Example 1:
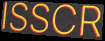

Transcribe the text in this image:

ISSCR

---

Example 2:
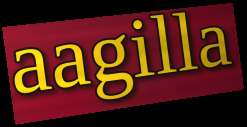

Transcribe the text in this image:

aagilla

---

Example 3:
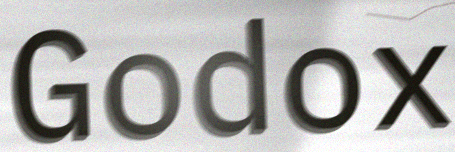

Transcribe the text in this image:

Godox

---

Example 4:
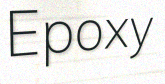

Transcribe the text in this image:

Epoxy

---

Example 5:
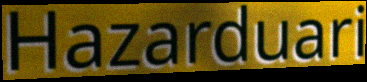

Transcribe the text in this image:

Hazarduari